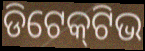
ଡିଟେକ୍‍ଟିଭ